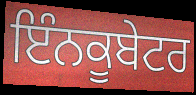
ਇੰਨਕੂਬੇਟਰ